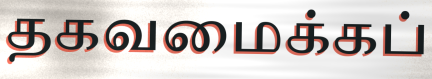
தகவமைக்கப்